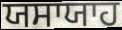
ਯਸਾਯਾਹ